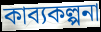
কাব্যকল্পনা